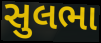
સુલભા